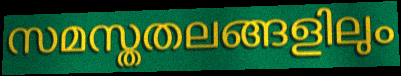
സമസ്തതലങ്ങളിലും